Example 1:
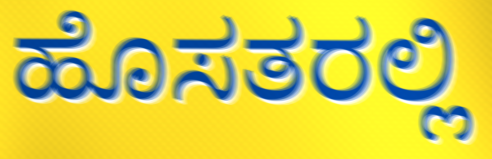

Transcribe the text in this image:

ಹೊಸತರಲ್ಲಿ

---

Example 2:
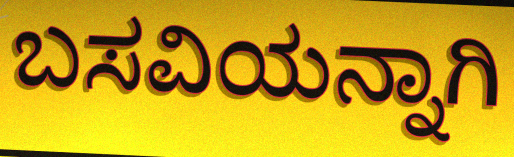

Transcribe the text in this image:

ಬಸವಿಯನ್ನಾಗಿ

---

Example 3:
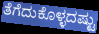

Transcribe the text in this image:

ತೆಗೆದುಕೊಳ್ಳದಷ್ಟು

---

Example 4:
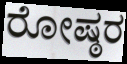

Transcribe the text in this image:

ರೋಷ್ಠರ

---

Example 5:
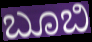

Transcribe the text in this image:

ಬೂಬಿ